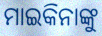
ମାଇକିନାଙ୍କୁ